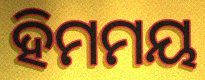
ହିମମୟ